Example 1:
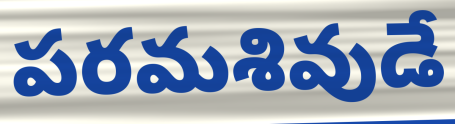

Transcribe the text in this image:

పరమశివుడే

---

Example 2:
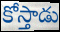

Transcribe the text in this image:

కోస్తాడు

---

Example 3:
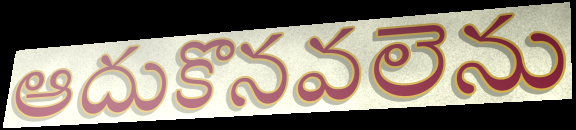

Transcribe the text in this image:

ఆదుకొనవలెను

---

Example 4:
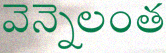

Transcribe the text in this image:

వెన్నెలంత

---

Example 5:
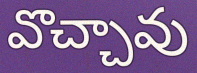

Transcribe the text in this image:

వొచ్చావు